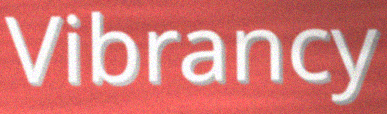
Vibrancy